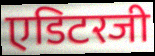
एडिटरजी